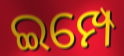
ଇମ୍ପେ